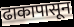
ढाकापासून